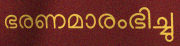
ഭരണമാരംഭിച്ചു